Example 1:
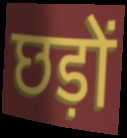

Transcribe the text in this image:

छड़ों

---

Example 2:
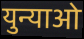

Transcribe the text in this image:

युन्याओ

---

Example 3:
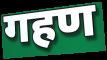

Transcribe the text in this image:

गहण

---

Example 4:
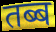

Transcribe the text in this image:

तब्ब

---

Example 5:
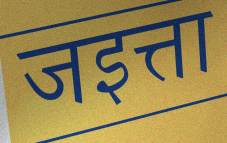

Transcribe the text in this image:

जइत्ता